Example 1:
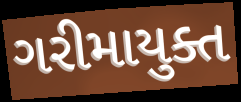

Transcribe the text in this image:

ગરીમાયુક્ત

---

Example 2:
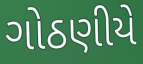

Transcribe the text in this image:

ગોઠણીયે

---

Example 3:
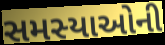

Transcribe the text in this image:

સમસ્યાઓની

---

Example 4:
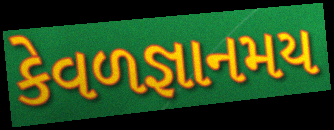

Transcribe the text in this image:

કેવળજ્ઞાનમય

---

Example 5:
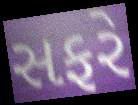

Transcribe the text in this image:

સફરે